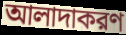
আলাদাকরণ